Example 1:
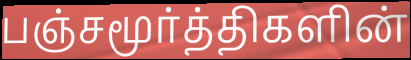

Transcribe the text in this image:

பஞ்சமூர்த்திகளின்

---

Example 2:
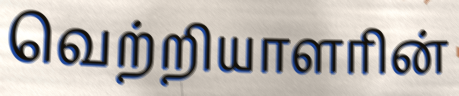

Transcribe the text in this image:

வெற்றியாளரின்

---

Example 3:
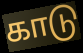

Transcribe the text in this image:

காடு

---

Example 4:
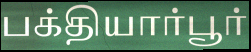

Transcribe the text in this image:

பக்தியார்பூர்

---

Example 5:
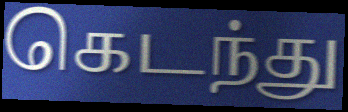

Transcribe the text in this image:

கெடந்து